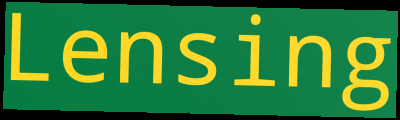
Lensing